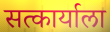
सत्कार्याला